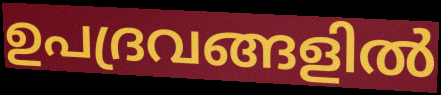
ഉപദ്രവങ്ങളിൽ